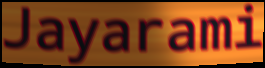
Jayarami